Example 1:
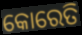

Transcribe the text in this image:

କୋରେତି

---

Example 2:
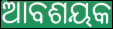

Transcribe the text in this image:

ଆବଶୟକ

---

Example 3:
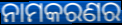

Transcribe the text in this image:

ନାମକରଣର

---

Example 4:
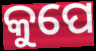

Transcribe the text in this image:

କୁପେ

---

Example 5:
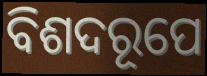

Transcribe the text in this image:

ବିଶଦରୂପେ